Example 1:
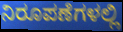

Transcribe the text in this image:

ನಿರೂಪಣೆಗಳಲ್ಲಿ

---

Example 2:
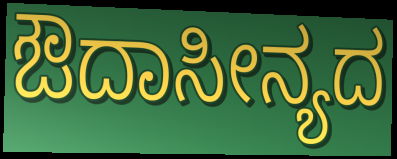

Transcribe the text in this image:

ಔದಾಸೀನ್ಯದ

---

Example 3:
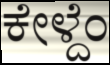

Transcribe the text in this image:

ಕೇಳ್ದೆಂ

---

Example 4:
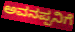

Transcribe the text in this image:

ಅವನಪ್ಪನಿಗೆ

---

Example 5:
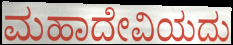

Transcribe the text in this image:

ಮಹಾದೇವಿಯದು